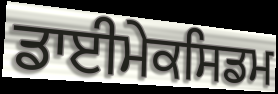
ਡਾਈਮੇਕਸਿਡਮ